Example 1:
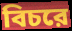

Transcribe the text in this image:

বিচরে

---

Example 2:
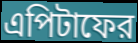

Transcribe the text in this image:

এপিটাফের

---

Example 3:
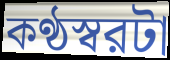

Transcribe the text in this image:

কণ্ঠস্বরটা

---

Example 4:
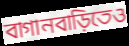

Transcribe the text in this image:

বাগানবাড়িতেও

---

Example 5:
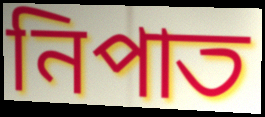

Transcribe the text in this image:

নিপাত